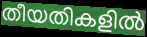
തീയതികളിൽ